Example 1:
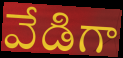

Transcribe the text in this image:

వేడిగా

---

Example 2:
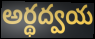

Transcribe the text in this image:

అర్థద్వయ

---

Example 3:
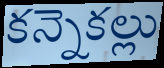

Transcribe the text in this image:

కన్నెకల్లు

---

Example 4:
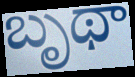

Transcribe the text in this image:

బృథా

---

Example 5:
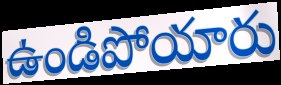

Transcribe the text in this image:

ఉండిపోయారు